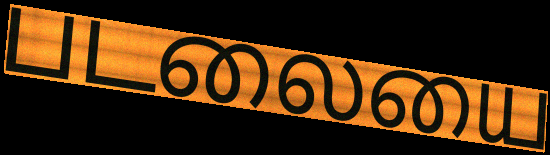
படலையை